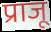
प्राजू